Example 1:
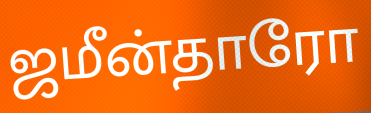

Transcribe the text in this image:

ஜமீன்தாரோ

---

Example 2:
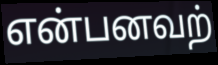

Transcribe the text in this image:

என்பனவற்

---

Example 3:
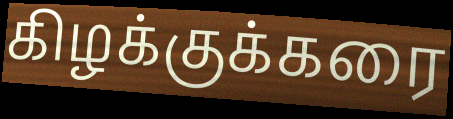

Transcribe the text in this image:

கிழக்குக்கரை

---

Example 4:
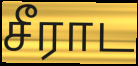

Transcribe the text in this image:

சீராட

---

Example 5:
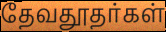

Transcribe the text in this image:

தேவதூதர்கள்